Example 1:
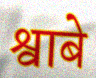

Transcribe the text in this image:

श्वाबे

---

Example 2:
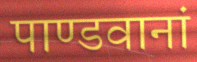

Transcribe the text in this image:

पाण्डवानां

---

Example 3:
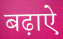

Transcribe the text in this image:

बढ़ाऐ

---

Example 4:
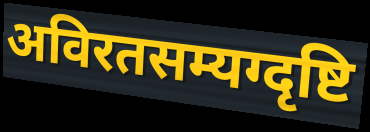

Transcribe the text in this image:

अविरतसम्यग्दृष्टि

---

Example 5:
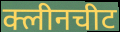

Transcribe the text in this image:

क्लीनचीट